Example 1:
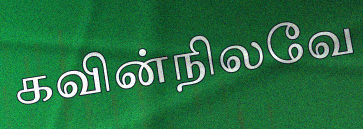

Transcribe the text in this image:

கவின்நிலவே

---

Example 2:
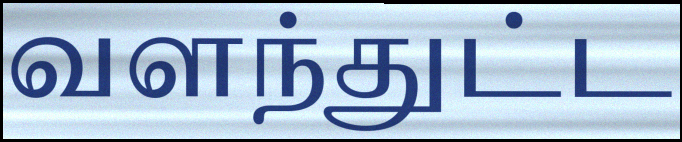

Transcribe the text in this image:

வளந்துட்ட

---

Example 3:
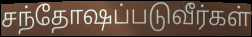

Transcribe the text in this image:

சந்தோஷப்படுவீர்கள்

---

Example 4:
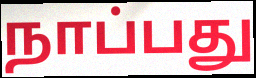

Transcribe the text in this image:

நாப்பது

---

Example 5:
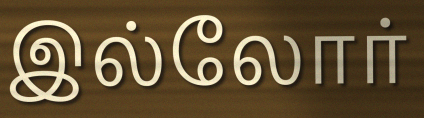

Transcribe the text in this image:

இல்லோர்